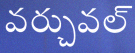
వర్చువల్